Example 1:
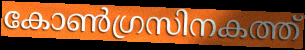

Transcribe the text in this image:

കോൺഗ്രസിനകത്ത്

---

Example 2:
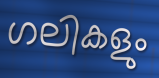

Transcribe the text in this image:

ഗലികളും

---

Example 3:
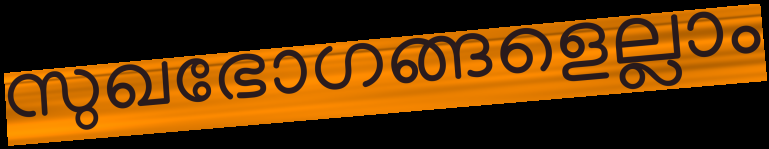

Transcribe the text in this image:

സുഖഭോഗങ്ങളെല്ലാം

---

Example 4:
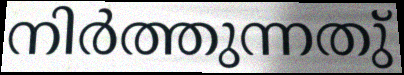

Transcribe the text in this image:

നിർത്തുന്നതു്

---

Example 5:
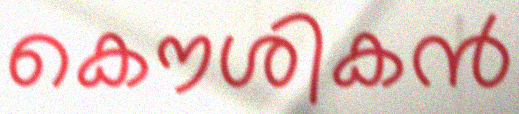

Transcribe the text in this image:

കൌശികൻ